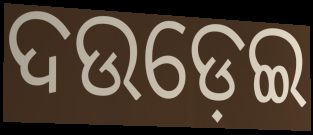
ଦଉଡ଼େଇ